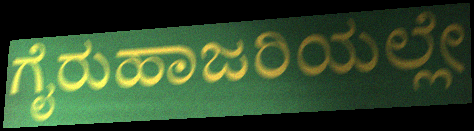
ಗೈರುಹಾಜರಿಯಲ್ಲೇ